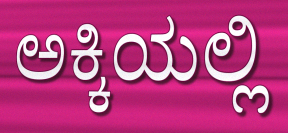
ಅಕ್ಕಿಯಲ್ಲಿ